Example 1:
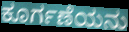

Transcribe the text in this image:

ಕೂರ್ಗಣೆಯನು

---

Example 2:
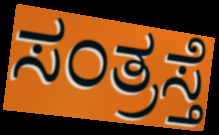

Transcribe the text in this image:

ಸಂತ್ರಸ್ತೆ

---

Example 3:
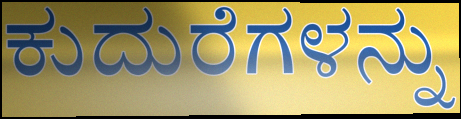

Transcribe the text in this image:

ಕುದುರೆಗಳನ್ನು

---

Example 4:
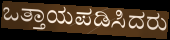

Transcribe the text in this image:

ಒತ್ತಾಯಪಡಿಸಿದರು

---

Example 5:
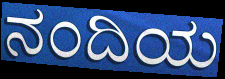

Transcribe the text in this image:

ನಂದಿಯ